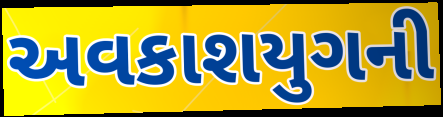
અવકાશયુગની